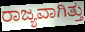
ರಾಜ್ಯವಾಗಿತ್ತು